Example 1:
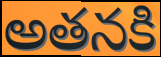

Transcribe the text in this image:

అతనకి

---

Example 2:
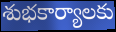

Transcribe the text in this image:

శుభకార్యాలకు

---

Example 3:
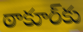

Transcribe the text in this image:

ఠాకూర్‌కు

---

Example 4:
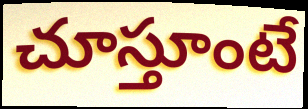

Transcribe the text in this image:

చూస్తూంటే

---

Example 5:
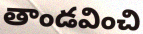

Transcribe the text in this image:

తాండవించి